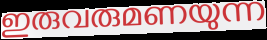
ഇരുവരുമണയുന്ന